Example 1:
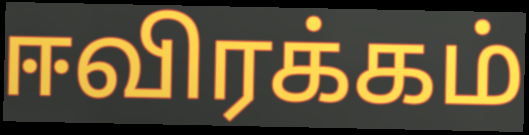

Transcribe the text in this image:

ஈவிரக்கம்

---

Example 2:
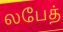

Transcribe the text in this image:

லபேத்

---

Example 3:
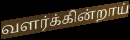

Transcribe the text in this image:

வளர்க்கின்றாய்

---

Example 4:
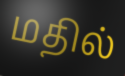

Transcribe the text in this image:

மதில்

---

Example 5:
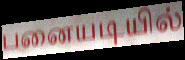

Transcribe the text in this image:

பனையடியில்